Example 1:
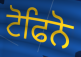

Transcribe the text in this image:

ਟੋਫਿਨੋ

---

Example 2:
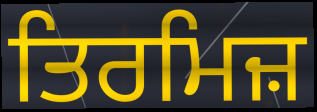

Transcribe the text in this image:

ਤਿਰਮਿਜ਼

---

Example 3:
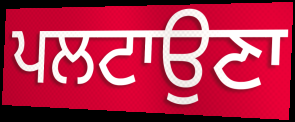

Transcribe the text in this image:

ਪਲਟਾਉਣਾ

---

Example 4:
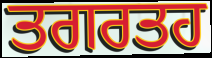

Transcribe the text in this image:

ਤਗਰਤਹ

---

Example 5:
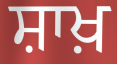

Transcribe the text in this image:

ਸ਼ਾਖ਼